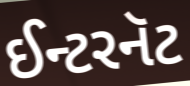
ઈન્ટરનૅટ